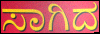
ಸಾಗಿದ